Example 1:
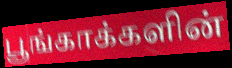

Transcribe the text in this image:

பூங்காக்களின்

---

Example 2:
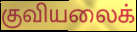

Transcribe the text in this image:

குவியலைக்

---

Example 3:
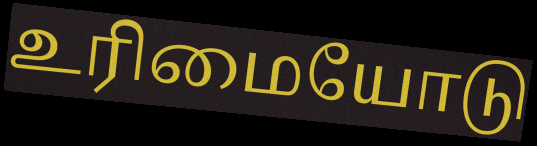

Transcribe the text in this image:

உரிமையோடு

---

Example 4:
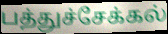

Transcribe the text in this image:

பத்துச்சேக்கல்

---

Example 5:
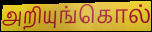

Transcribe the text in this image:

அறியுங்கொல்